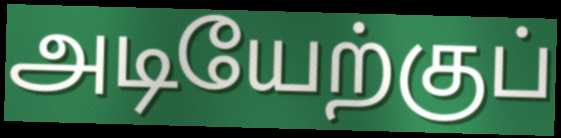
அடியேற்குப்